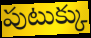
పుటుక్కు